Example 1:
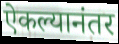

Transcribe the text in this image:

ऐकल्यानंतर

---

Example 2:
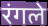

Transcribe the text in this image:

रंगले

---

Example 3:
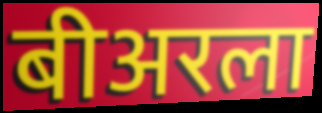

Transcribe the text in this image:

बीअरला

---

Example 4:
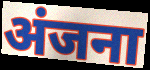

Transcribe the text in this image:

अंजना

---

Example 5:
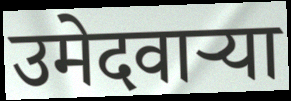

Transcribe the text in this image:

उमेदवार्‍या